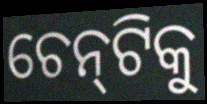
ଚେନ୍‌ଟିକୁ